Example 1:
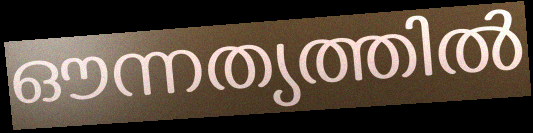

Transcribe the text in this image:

ഔന്നത്യത്തിൽ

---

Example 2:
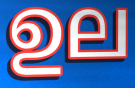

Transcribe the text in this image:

ഉല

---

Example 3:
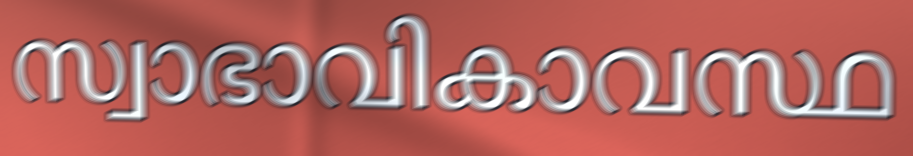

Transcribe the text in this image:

സ്വാഭാവികാവസ്ഥ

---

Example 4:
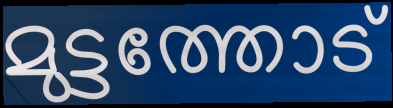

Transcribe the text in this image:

മുട്ടത്തോട്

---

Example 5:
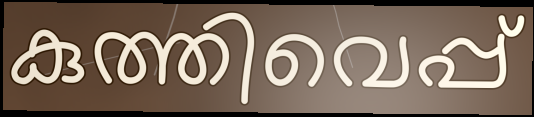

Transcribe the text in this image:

കുത്തിവെപ്പ്